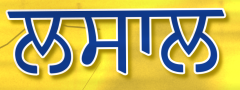
ਲਸਾਲ